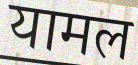
यामल